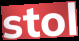
stol